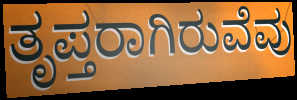
ತೃಪ್ತರಾಗಿರುವೆವು